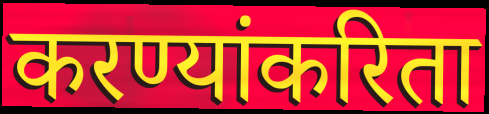
करण्यांकरिता